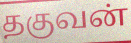
தகுவன்